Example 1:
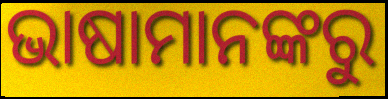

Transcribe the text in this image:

ଭାଷାମାନଙ୍କରୁ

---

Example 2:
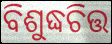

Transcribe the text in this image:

ବିଶୁଦ୍ଧଚିତ୍ତ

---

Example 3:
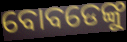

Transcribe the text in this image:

ବୋବଡେଙ୍କୁ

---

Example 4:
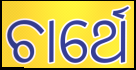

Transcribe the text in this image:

ଚାର୍ଥେ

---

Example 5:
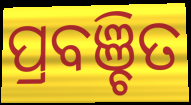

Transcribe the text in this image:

ପ୍ରବଞ୍ଚିତ